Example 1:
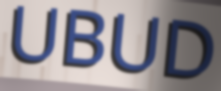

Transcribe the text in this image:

UBUD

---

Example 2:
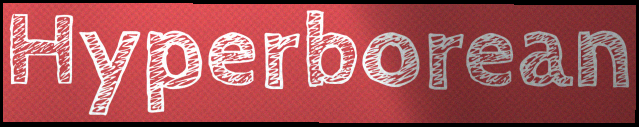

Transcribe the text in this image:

Hyperborean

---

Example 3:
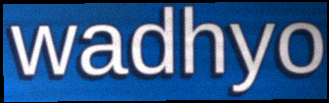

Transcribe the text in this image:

wadhyo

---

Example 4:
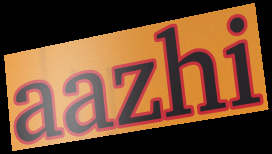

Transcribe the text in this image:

aazhi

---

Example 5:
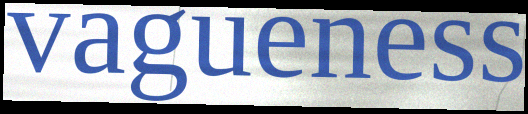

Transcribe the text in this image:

vagueness